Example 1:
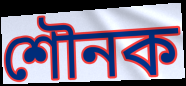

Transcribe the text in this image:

শৌনক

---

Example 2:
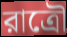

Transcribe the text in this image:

রাত্রৌ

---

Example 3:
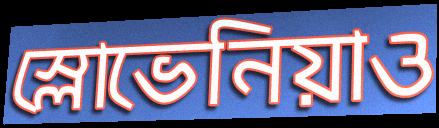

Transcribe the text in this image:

স্লোভেনিয়াও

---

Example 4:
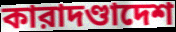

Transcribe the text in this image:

কারাদণ্ডাদেশ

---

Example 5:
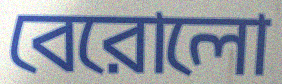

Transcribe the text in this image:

বেরোলো